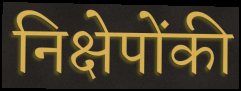
निक्षेपोंकी